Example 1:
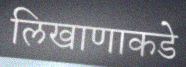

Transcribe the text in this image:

लिखाणाकडे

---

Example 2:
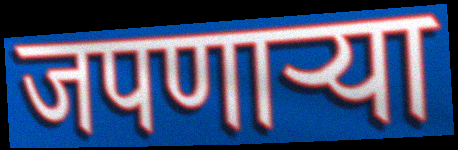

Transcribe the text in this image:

जपणाऱ्या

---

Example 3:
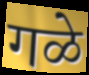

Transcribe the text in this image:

गळे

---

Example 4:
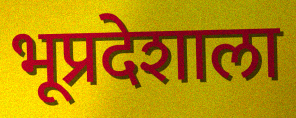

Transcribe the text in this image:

भूप्रदेशाला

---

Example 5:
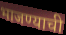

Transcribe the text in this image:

भाजण्याची